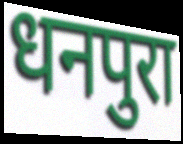
धनपुरा